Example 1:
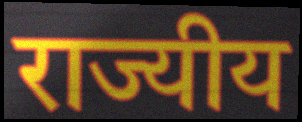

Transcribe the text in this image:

राज्यीय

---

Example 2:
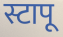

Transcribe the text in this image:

स्टापू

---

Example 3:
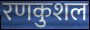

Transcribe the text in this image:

रणकुशल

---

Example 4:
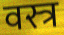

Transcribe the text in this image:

वस्त्र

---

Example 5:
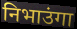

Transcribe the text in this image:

निभाउंगा